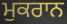
ਮੁਕਰਾਨ